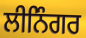
ਲੀਨਿੰਗਰ